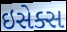
ઇસેક્સ